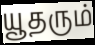
யூதரும்